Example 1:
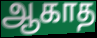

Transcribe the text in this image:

ஆகாத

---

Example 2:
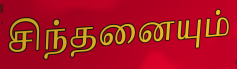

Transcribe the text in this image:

சிந்தனையும்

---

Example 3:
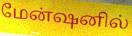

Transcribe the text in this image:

மேன்ஷனில்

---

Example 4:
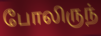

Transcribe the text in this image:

போலிருந்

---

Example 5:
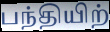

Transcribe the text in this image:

பந்தியிற்